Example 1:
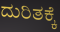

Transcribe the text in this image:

ದುರಿತಕ್ಕೆ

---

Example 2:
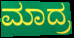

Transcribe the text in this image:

ಮಾದ್ರ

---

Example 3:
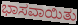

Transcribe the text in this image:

ಭಾಸವಾಯಿತು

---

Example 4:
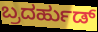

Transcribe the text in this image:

ಬ್ರದರ್ಹುಡ್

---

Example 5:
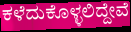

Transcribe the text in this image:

ಕಳೆದುಕೊಳ್ಳಲಿದ್ದೇವೆ